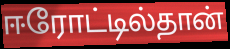
ஈரோட்டில்தான்